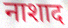
नाशाद